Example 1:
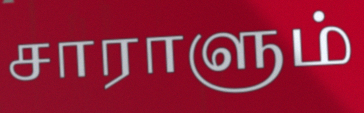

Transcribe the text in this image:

சாராளும்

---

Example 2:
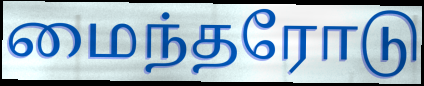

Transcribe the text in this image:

மைந்தரோடு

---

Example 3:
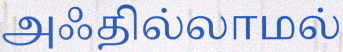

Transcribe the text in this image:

அஃதில்லாமல்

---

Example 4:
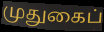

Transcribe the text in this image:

முதுகைப்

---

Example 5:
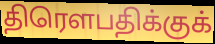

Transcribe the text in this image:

திரௌபதிக்குக்